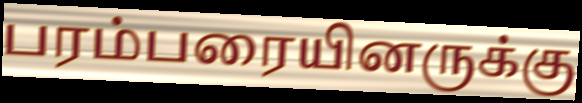
பரம்பரையினருக்கு